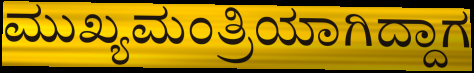
ಮುಖ್ಯಮಂತ್ರಿಯಾಗಿದ್ದಾಗ